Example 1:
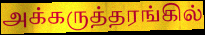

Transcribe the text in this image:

அக்கருத்தரங்கில்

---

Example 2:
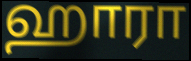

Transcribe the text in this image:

ஹாரா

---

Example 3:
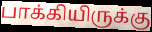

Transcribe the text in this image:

பாக்கியிருக்கு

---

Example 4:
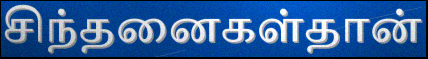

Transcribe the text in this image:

சிந்தனைகள்தான்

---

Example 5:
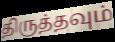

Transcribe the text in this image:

திருத்தவும்